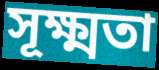
সূক্ষ্মতা